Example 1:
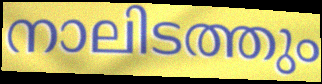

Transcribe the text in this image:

നാലിടത്തും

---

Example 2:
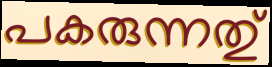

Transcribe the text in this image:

പകരുന്നതു്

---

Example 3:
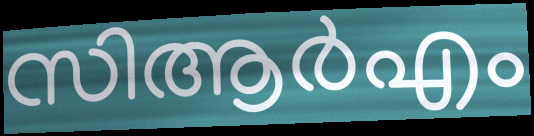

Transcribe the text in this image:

സിആർഎം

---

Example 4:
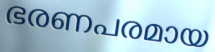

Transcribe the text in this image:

ഭരണപരമായ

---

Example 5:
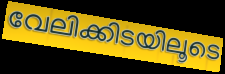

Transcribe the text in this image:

വേലിക്കിടയിലൂടെ